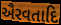
ઐરવતાદિ